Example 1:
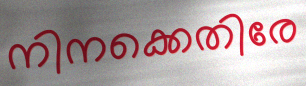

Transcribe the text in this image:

നിനക്കെതിരേ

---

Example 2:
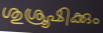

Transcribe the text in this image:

ശുശ്രൂഷിക്കും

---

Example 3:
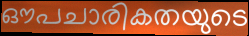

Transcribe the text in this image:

ഔപചാരികതയുടെ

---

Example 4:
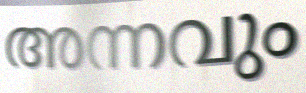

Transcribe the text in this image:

അന്നവും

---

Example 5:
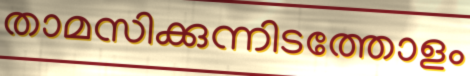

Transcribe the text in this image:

താമസിക്കുന്നിടത്തോളം